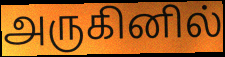
அருகினில்